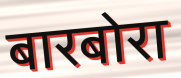
बारबोरा